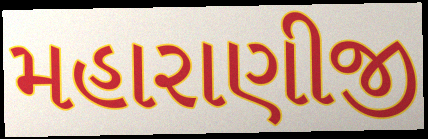
મહારાણીજી